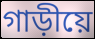
গাড়ীয়ে